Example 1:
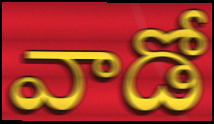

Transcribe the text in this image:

వాడో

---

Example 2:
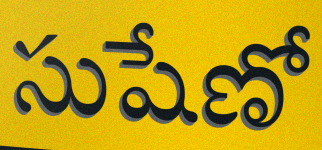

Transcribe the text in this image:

సుషేణో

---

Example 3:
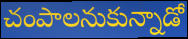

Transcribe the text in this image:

చంపాలనుకున్నాడో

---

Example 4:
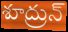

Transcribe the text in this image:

శూద్రున్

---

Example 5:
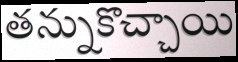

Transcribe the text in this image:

తన్నుకొచ్చాయి